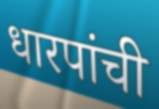
धारपांची